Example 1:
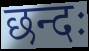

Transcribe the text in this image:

छन्दः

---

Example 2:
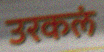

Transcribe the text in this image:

उरकलं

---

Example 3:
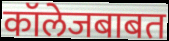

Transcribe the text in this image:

कॉलेजबाबत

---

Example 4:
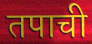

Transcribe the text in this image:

तपाची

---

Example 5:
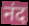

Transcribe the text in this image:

नंद